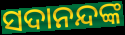
ସଦାନନ୍ଦଙ୍କ